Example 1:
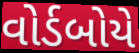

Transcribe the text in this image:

વોર્ડબોયે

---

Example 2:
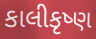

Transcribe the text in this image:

કાલીકૃષ્ણ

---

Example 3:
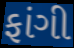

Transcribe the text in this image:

ફાંગી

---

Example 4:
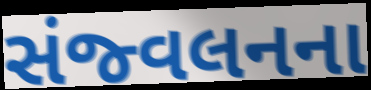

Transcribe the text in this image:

સંજ્વલનના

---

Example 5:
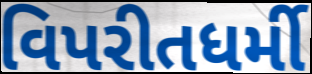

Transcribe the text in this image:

વિપરીતધર્મી